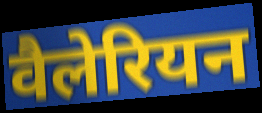
वैलेरियन